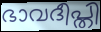
ഭാവദീപ്തി